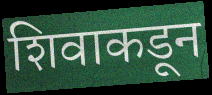
शिवाकडून